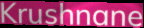
Krushnane